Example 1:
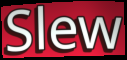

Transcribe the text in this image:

Slew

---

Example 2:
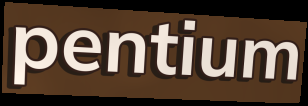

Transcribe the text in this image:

pentium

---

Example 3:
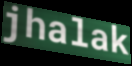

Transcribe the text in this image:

jhalak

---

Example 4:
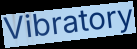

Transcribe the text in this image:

Vibratory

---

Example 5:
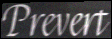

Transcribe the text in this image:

Prevert